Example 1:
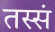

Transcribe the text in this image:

तस्सं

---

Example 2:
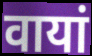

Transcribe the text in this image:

वायां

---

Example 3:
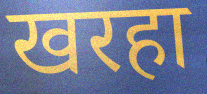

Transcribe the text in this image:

खरहा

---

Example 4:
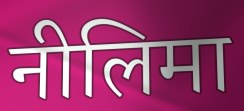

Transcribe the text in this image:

नीलिमा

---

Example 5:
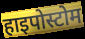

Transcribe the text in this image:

हाइपोस्टोम